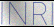
INRI